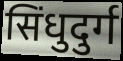
सिंधुदुर्ग